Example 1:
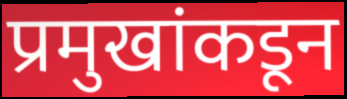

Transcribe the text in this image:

प्रमुखांकडून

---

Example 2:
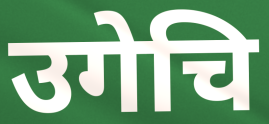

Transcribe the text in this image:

उगेचि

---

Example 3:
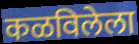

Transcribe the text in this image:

कळविलेला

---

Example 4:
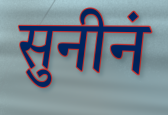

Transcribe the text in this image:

सुनीनं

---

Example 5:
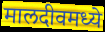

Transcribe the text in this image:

मालदीवमध्ये